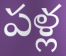
పళ్ల